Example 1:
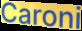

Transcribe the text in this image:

Caroni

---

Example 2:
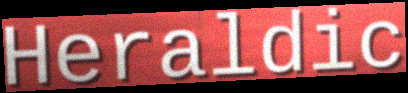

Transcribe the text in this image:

Heraldic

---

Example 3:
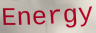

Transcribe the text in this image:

Energy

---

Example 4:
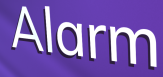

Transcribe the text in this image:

Alarm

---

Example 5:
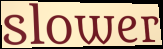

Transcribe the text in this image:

slower